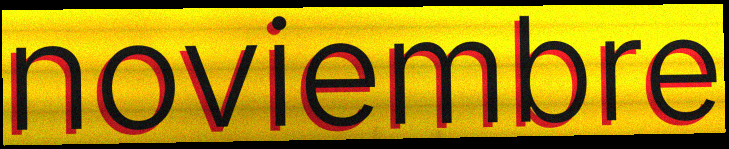
noviembre